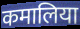
कमालिया